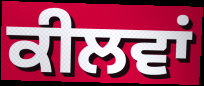
ਕੀਲਵਾਂ